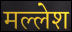
मल्लेश